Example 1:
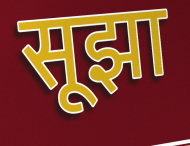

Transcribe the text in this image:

सूझा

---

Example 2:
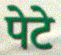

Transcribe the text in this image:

पेटे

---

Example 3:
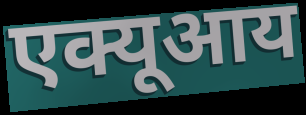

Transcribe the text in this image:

एक्यूआय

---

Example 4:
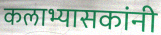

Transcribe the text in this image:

कलाभ्यासकांनी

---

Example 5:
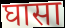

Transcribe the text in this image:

घासा